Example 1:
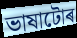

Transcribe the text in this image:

ভাষাটোৰ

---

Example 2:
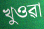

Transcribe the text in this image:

খুওৱা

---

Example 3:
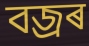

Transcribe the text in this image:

বজ্ৰৰ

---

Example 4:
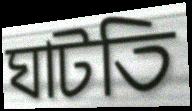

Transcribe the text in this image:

ঘাটতি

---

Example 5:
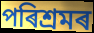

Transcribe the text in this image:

পৰিশ্ৰমৰ